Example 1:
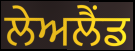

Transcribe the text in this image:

ਲੇਅਲੈਂਡ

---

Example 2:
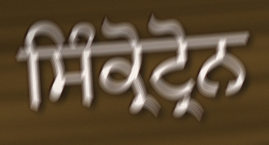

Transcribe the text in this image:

ਸਿੰਕ੍ਰੋਟ੍ਰੋਨ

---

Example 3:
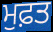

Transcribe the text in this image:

ਮੁਫ਼ਤ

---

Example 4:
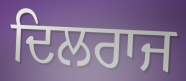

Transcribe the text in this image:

ਦਿਲਰਾਜ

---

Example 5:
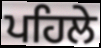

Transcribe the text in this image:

ਪਹਿਲੇ